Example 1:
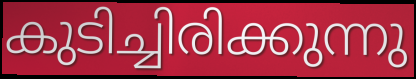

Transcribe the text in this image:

കുടിച്ചിരിക്കുന്നു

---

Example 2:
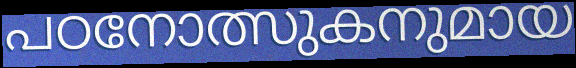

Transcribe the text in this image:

പഠനോത്സുകനുമായ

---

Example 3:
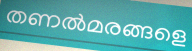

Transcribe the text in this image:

തണൽമരങ്ങളെ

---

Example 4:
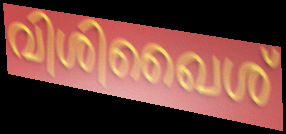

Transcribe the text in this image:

വിശിഖൈശ്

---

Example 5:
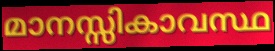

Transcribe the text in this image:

മാനസ്സികാവസ്ഥ